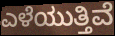
ಎಳೆಯುತ್ತಿವೆ